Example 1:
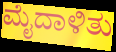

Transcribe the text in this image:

ಮೈದಾಳಿತು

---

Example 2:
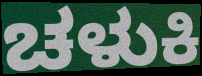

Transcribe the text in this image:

ಚಳುಕಿ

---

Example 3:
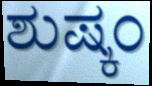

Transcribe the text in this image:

ಶುಷ್ಕಂ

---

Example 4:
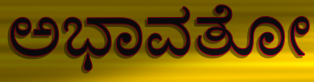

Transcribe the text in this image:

ಅಭಾವತೋ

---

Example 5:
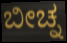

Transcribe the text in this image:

ಬೀಚ್ನ